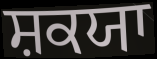
ਸ਼ਕਯਾ